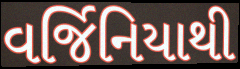
વર્જિનિયાથી